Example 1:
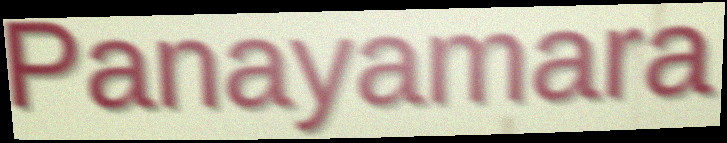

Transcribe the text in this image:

Panayamara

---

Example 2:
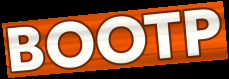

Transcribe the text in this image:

BOOTP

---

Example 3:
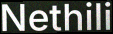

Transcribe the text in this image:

Nethili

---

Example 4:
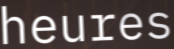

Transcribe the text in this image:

heures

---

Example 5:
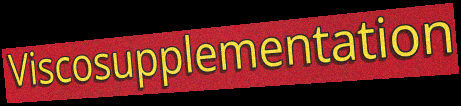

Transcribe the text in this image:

Viscosupplementation